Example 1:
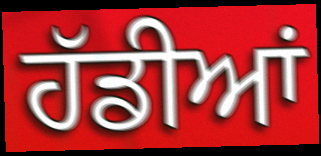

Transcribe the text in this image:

ਹੱਡੀਆਂ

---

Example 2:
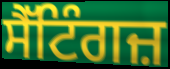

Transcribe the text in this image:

ਸੈੱਟਿੰਗਜ਼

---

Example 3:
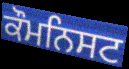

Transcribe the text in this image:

ਕੌਮਨਿਸਟ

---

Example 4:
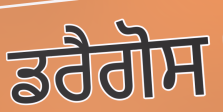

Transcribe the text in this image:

ਡਰੈਗੋਸ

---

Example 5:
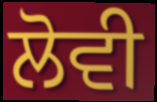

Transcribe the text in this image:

ਲੋਵੀ